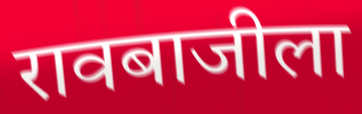
रावबाजीला